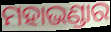
ମହାଭଣ୍ଡାର